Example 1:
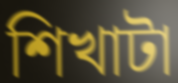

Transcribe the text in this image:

শিখাটা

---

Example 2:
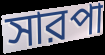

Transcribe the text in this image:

সারপা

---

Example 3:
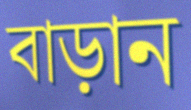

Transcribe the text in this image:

বাড়ান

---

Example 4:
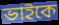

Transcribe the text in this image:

ভাইকে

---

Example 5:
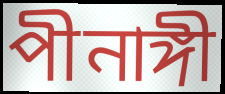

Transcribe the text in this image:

পীনাঙ্গী